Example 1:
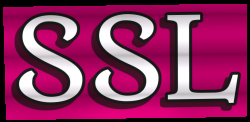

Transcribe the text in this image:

SSL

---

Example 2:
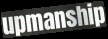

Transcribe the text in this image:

upmanship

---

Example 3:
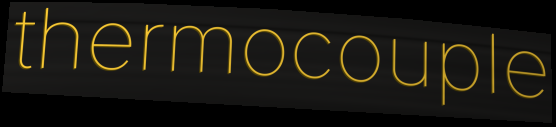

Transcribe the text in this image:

thermocouple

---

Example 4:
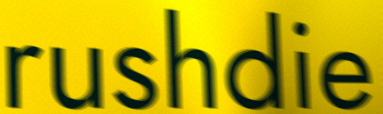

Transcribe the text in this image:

rushdie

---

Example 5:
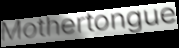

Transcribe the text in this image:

Mothertongue